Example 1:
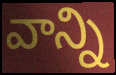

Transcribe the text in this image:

వాన్ని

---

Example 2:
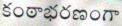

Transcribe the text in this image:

కంఠాభరణంగా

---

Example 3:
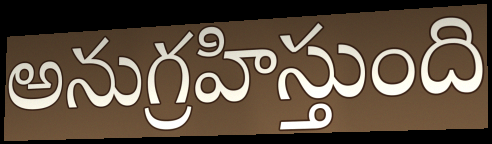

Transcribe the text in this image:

అనుగ్రహిస్తుంది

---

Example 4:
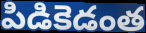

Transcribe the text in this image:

పిడికెడంత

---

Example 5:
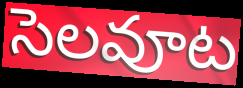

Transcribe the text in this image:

సెలవూట